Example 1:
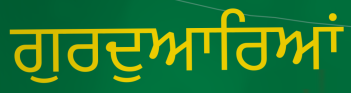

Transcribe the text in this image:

ਗੁਰਦੁਆਰਿਆਂ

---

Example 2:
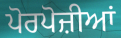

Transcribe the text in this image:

ਪੋਰਪੋਜ਼ੀਆਂ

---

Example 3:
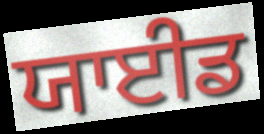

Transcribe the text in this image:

ਯਾਈਡ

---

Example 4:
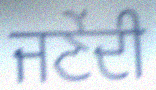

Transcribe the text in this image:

ਜਣੇਂਦੀ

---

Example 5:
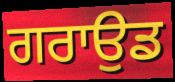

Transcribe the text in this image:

ਗਰਾਉਡ